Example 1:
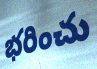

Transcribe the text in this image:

భరించు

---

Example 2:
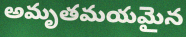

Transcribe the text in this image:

అమృతమయమైన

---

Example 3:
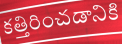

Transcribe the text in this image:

కత్తిరించడానికి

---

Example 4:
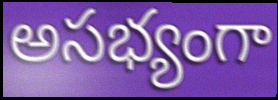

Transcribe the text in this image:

అసభ్యంగా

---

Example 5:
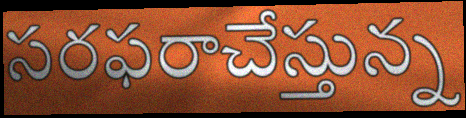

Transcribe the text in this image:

సరఫరాచేస్తున్న